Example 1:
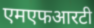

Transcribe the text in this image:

एमएफआरटी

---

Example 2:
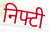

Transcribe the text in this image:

निफ्टी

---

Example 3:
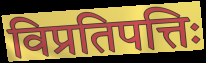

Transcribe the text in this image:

विप्रतिपत्तिः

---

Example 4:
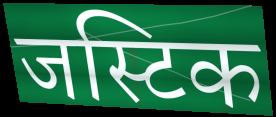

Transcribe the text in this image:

जस्टिक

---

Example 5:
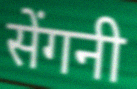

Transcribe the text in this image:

सेंगनी